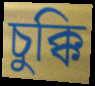
চুক্কি